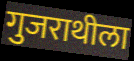
गुजराथीला